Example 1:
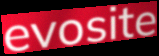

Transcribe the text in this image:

evosite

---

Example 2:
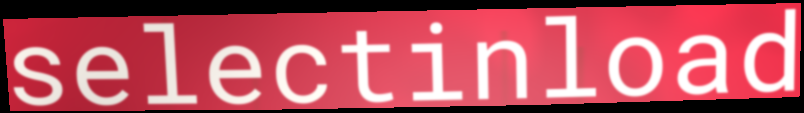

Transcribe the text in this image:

selectinload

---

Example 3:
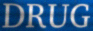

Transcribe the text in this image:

DRUG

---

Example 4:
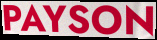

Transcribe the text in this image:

PAYSON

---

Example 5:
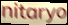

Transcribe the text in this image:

nitaryo